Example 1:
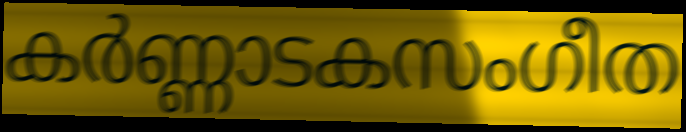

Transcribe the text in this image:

കർണ്ണാടകസംഗീത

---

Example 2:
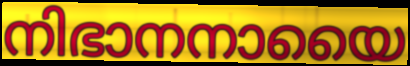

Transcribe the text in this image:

നിഭാനനായൈ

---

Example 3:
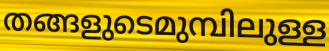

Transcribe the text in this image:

തങ്ങളുടെമുമ്പിലുള്ള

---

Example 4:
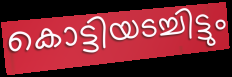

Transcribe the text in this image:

കൊട്ടിയടച്ചിട്ടും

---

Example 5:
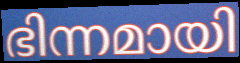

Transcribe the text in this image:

ഭിന്നമായി